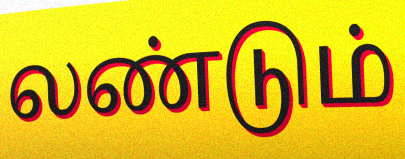
லண்டும்